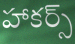
హాకర్స్